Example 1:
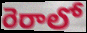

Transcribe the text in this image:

రెరాలో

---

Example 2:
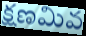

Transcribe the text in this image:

క్షణమివ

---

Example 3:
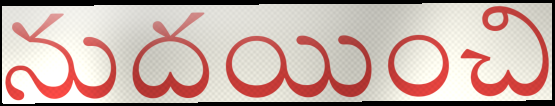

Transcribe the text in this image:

నుదయించి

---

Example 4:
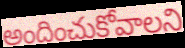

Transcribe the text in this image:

అందించుకోవాలని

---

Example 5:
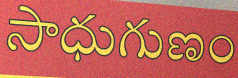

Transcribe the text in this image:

సాధుగుణం